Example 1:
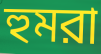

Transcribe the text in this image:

হুমরা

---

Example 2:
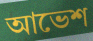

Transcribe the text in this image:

আভেশ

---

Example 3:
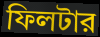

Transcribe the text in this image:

ফিলটার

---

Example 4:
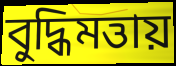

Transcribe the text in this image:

বুদ্ধিমত্তায়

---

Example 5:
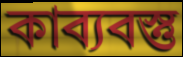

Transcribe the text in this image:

কাব্যবস্তু